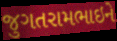
જુગતરામભાઇને